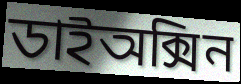
ডাইঅক্সিন